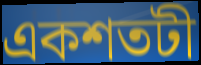
একশতটী